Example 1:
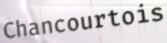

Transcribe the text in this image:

Chancourtois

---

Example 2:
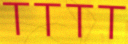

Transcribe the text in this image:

TTTT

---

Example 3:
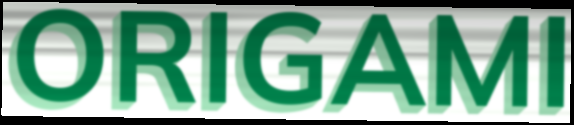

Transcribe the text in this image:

ORIGAMI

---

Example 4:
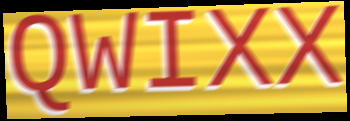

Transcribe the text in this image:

QWIXX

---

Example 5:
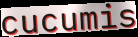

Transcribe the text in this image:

cucumis